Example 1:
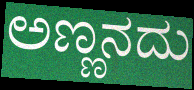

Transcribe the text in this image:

ಅಣ್ಣನದು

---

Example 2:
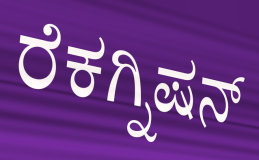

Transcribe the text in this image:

ರೆಕಗ್ನಿಷನ್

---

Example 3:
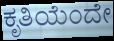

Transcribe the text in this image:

ಕೃತಿಯೆಂದೇ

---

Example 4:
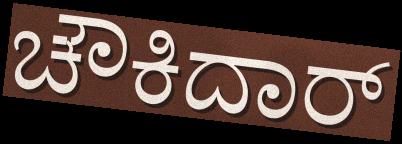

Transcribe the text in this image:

ಚೌಕಿದಾರ್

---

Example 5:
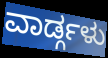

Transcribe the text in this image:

ವಾರ್ಡ್ಗಳು